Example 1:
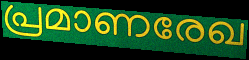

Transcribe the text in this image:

പ്രമാണരേഖ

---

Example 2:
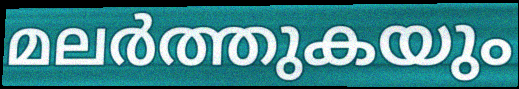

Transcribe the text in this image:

മലർത്തുകയും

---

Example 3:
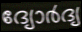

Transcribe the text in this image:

ദ്യോർദ്യ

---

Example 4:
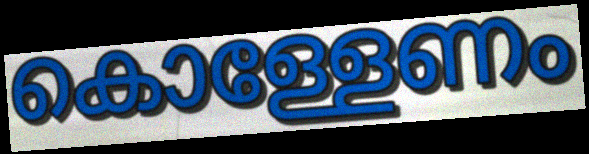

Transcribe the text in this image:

കൊള്ളേണം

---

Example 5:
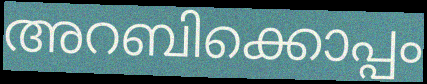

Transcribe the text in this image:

അറബിക്കൊപ്പം